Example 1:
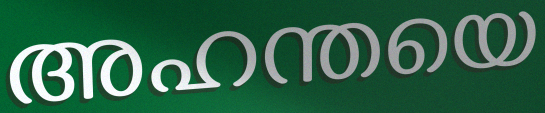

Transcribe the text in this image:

അഹന്തയെ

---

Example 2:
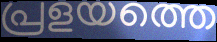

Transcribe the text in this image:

പ്രളയത്തെ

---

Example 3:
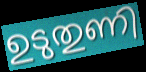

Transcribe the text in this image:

ഉടുതുണി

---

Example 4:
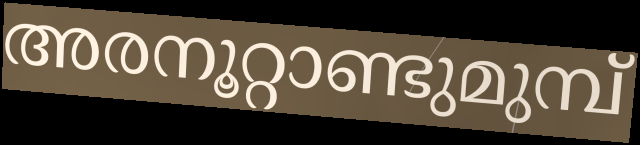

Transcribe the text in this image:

അരനൂറ്റാണ്ടുമുമ്പ്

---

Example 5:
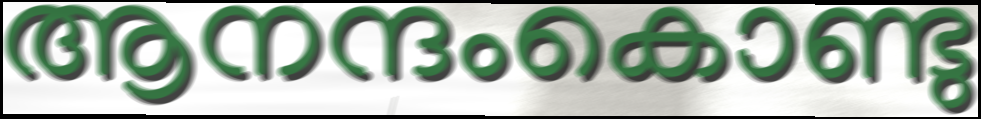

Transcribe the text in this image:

ആനന്ദംകൊണ്ടു